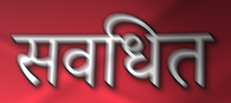
सवधित